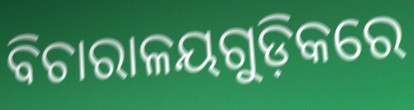
ବିଚାରାଳୟଗୁଡ଼ିକରେ